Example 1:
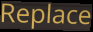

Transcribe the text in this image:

Replace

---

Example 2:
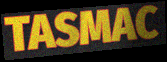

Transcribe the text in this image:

TASMAC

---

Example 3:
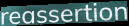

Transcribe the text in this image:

reassertion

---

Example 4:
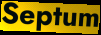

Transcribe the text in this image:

Septum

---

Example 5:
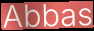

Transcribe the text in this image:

Abbas